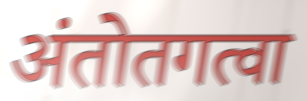
अंतोतगत्वा